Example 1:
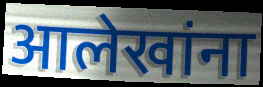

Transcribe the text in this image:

आलेखांना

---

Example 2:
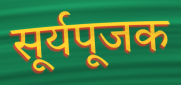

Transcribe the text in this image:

सूर्यपूजक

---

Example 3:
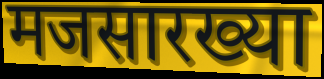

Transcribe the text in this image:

मजसारख्या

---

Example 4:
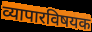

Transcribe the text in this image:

व्यापारविषयक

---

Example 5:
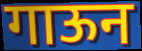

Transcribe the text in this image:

गाऊन